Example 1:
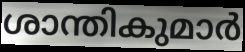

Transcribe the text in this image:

ശാന്തികുമാർ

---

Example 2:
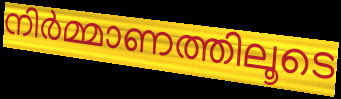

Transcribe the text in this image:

നിർമ്മാണത്തിലൂടെ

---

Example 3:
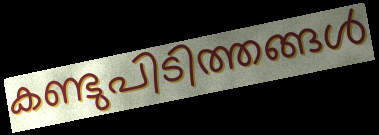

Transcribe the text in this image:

കണ്ടുപിടിത്തങ്ങൾ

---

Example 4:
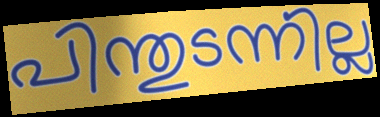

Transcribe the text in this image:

പിന്തുടൎന്നില്ല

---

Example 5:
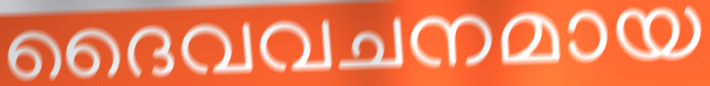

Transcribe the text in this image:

ദൈവവചനമായ